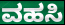
ವಹಸಿ